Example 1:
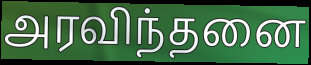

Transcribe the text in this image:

அரவிந்தனை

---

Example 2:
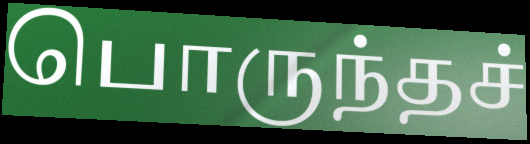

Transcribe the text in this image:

பொருந்தச்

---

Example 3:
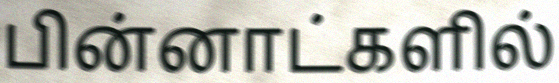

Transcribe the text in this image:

பின்னாட்களில்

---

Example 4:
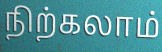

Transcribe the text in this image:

நிற்கலாம்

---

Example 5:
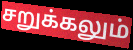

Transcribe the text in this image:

சறுக்கலும்